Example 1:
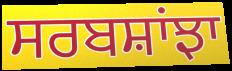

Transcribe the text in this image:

ਸਰਬਸ਼ਾਂਝਾ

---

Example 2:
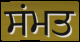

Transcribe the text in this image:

ਸਂਮਤ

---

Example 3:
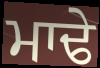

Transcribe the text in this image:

ਮਾਢੇ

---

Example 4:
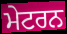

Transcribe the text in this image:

ਮੇਟਰਨ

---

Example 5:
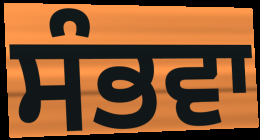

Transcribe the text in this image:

ਸੰਭਵਾ